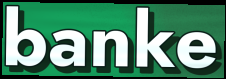
banke